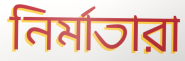
নির্মাতারা